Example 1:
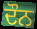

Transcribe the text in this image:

ਦੌਨ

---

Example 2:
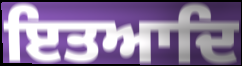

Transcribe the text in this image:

ਇਤਆਦਿ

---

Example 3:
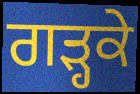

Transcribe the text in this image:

ਗੜ੍ਹਕੇ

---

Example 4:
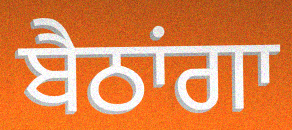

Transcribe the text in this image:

ਬੈਠਾਂਗਾ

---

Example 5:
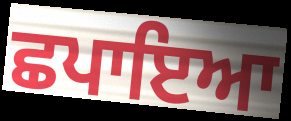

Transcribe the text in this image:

ਛਪਾਇਆ